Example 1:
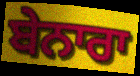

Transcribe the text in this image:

ਬੇਨਾਰਾ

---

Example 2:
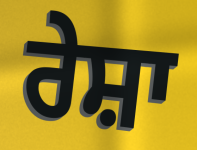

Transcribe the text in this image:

ਰੇਸ਼ਾ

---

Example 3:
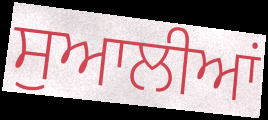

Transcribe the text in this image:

ਸੁਆਲੀਆਂ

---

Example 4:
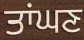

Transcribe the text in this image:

ਤਾਂਘਣ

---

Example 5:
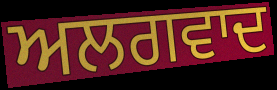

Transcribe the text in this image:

ਅਲਗਵਾਦ